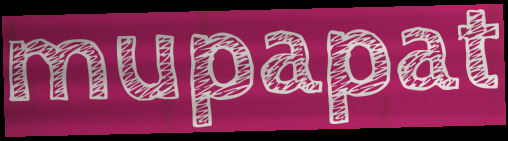
mupapat